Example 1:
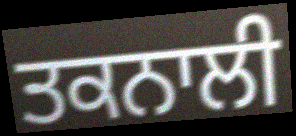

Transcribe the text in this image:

ਤਕਨਾਲੀ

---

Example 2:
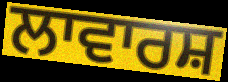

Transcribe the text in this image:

ਲਾਵਾਰਸ਼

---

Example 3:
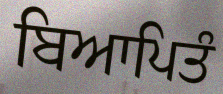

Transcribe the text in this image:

ਬਿਆਪਿਤੰ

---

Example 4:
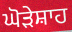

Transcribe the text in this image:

ਘੋੜੇਸ਼ਾਹ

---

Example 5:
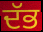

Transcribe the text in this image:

ਦੱਭ